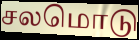
சலமொடு